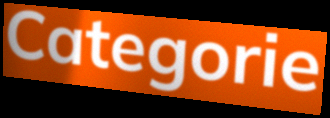
Categorie